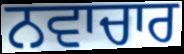
ਨਵਾਚਾਰ